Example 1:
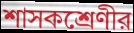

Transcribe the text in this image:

শাসকশ্রেণীর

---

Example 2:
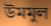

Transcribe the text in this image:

উমমুল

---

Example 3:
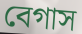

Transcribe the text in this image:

বেগাস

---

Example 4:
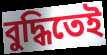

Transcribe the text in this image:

বুদ্ধিতেই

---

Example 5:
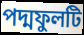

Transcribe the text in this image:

পদ্মফুলটি